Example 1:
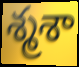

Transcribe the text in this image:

శ్మశా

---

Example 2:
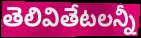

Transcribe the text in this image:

తెలివితేటలన్నీ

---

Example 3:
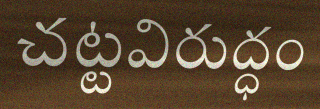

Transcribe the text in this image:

చట్టవిరుద్ధం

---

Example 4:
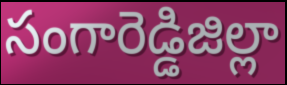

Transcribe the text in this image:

సంగారెడ్డిజిల్లా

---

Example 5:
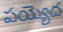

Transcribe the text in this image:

పయ్యెద